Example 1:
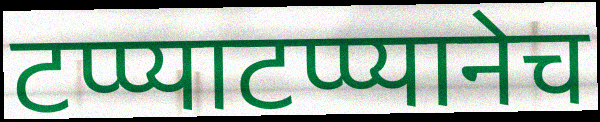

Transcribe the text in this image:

टप्प्याटप्प्यानेच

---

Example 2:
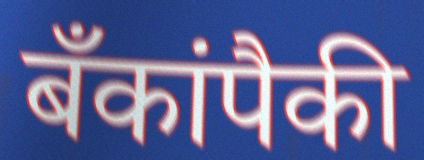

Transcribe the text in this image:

बँकांपैकी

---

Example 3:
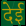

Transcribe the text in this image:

देई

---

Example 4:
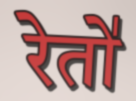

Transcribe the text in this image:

रेतो॑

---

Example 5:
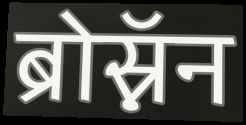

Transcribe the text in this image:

ब्रोस्नॅन